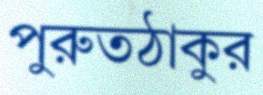
পুরুতঠাকুর